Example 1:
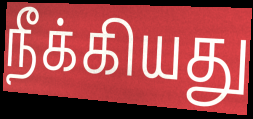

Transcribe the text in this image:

நீக்கியது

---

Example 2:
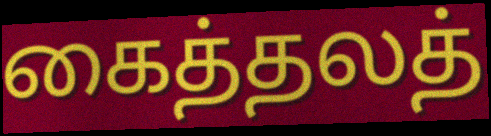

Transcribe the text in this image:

கைத்தலத்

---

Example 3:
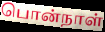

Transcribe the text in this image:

பொன்நாள்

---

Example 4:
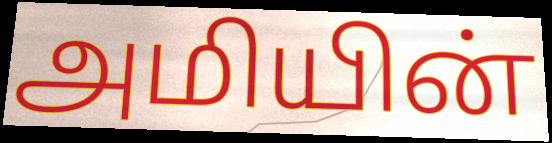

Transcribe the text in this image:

அமியின்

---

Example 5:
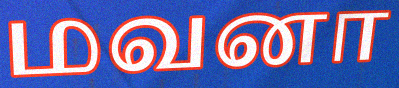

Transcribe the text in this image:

மவனா